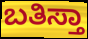
ಬತಿಸ್ತಾ